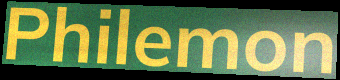
Philemon